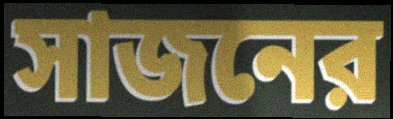
সাজনের